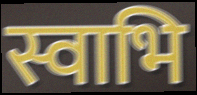
स्वाभि